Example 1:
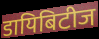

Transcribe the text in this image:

डायिबिटीज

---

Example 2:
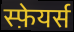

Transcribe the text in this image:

स्फ़ेयर्स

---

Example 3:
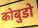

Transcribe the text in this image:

कोबुडो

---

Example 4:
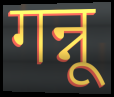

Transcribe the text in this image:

गन्नू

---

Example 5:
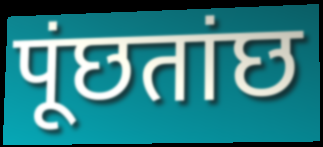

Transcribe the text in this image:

पूंछतांछ